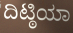
ದಿಟ್ಠಿಯಾ